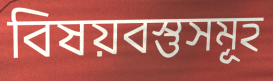
বিষয়বস্তুসমূহ